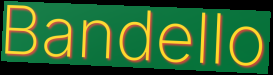
Bandello